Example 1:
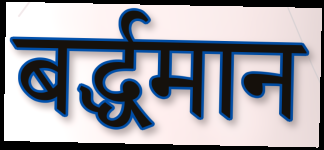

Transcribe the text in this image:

बर्द्धमान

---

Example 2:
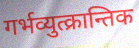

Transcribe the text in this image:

गर्भव्युत्क्रान्तिक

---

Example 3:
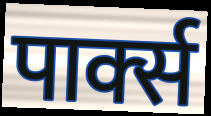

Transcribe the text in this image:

पार्क्‍स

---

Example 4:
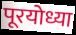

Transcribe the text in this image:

पूरयोध्या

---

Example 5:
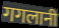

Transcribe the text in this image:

गगलानी